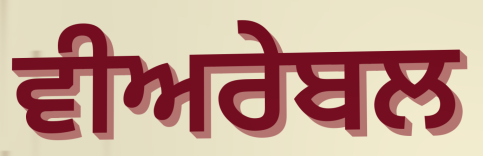
ਵੀਅਰੇਬਲ